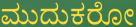
ಮುದುಕರೋ